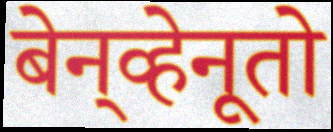
बेन्‌व्हेनूतो